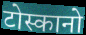
टोस्कानो